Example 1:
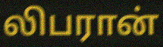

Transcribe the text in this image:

லிபரான்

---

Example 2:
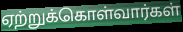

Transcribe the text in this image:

ஏற்றுக்கொள்வார்கள்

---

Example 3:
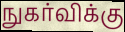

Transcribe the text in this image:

நுகர்விக்கு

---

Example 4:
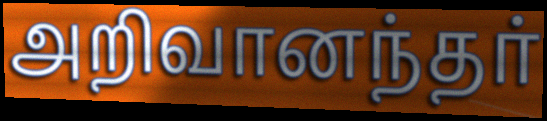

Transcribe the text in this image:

அறிவானந்தர்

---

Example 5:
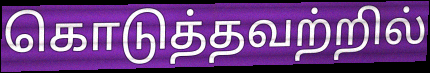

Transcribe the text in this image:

கொடுத்தவற்றில்